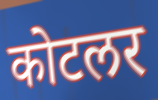
कोटलर